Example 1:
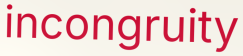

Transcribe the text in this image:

incongruity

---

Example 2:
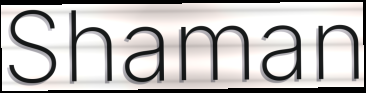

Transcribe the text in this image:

Shaman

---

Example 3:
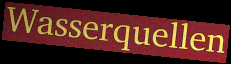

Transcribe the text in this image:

Wasserquellen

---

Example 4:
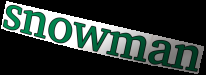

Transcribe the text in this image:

snowman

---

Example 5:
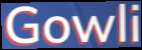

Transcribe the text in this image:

Gowli